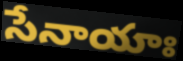
సేనాయాః